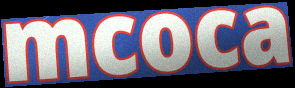
mcoca